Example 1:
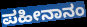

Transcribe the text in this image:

ಪಹೀನಾನಂ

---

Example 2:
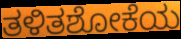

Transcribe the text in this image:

ತಳಿತಶೋಕೆಯ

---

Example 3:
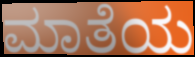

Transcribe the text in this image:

ಮಾತೆಯ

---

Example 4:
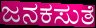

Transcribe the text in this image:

ಜನಕಸುತೆ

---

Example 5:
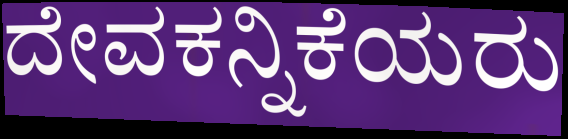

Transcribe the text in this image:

ದೇವಕನ್ನಿಕೆಯರು